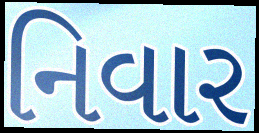
નિવાર